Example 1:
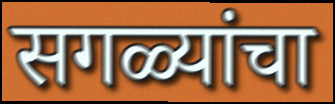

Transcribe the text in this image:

सगळ्यांचा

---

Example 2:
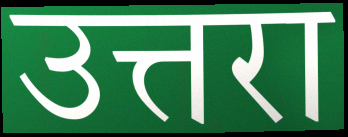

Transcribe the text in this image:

उत्तरा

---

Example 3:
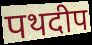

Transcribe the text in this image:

पथदीप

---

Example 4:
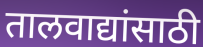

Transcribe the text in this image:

तालवाद्यांसाठी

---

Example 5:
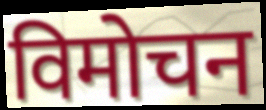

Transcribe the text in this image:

विमोचन